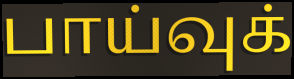
பாய்வுக்